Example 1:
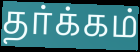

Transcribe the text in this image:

தர்க்கம்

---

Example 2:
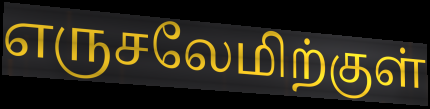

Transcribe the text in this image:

எருசலேமிற்குள்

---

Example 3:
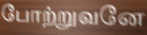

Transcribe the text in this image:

போற்றுவனே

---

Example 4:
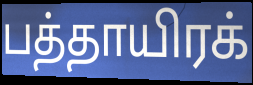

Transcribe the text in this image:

பத்தாயிரக்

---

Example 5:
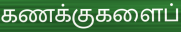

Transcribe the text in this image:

கணக்குகளைப்